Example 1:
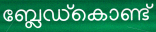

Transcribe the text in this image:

ബ്ലേഡ്കൊണ്ട്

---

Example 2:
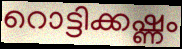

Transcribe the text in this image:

റൊട്ടിക്കഷ്ണം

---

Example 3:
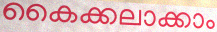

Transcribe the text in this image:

കൈക്കലാക്കാം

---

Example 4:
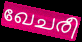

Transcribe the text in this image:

ഖേചരീ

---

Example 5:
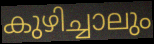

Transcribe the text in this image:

കുഴിച്ചാലും